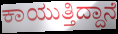
ಕಾಯುತ್ತಿದ್ದಾನೆ